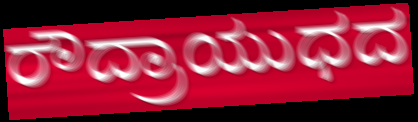
ರೌದ್ರಾಯುಧದ